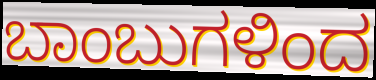
ಬಾಂಬುಗಳಿಂದ